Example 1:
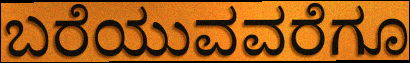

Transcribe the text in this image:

ಬರೆಯುವವರೆಗೂ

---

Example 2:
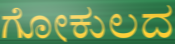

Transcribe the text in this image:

ಗೋಕುಲದ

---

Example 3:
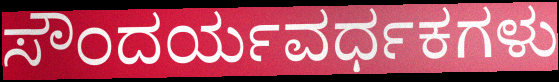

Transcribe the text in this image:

ಸೌಂದರ್ಯವರ್ಧಕಗಳು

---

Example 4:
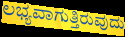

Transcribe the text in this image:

ಲಭ್ಯವಾಗುತ್ತಿರುವುದು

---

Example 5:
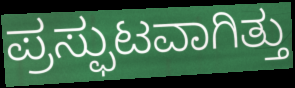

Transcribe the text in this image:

ಪ್ರಸ್ಫುಟವಾಗಿತ್ತು